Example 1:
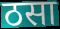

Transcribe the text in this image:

ठसा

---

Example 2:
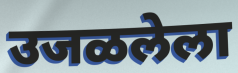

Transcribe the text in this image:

उजळलेला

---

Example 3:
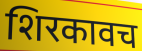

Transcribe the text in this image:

शिरकावच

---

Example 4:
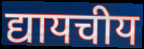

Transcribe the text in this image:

द्यायचीय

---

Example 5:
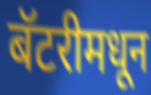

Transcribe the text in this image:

बॅटरीमधून